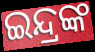
ଇନ୍ଦ୍ରଙ୍କ